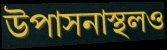
উপাসনাস্থলও